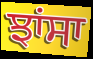
ਝਾਂਸਾ